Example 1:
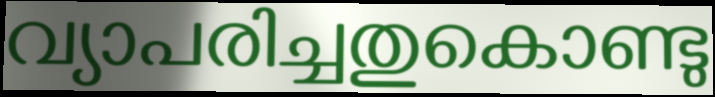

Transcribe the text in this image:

വ്യാപരിച്ചതുകൊണ്ടു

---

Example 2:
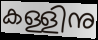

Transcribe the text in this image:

കള്ളിനു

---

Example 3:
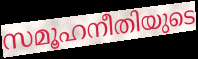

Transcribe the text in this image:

സമൂഹനീതിയുടെ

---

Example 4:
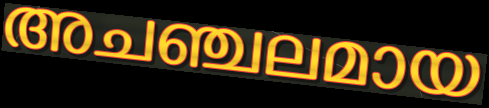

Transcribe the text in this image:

അചഞ്ചലമായ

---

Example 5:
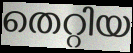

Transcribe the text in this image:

തെറ്റിയ